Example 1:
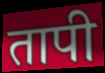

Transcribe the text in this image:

तापी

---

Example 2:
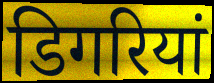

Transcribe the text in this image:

डिगरियां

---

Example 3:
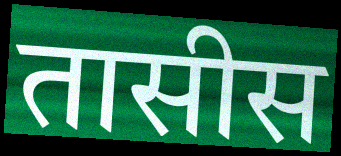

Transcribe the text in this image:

तासीस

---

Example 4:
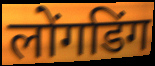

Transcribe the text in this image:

लोंगडिंग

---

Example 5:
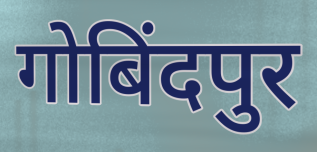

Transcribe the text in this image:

गोबिंदपुर